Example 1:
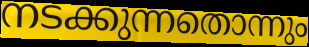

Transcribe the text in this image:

നടക്കുന്നതൊന്നും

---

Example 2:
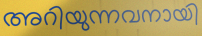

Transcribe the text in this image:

അറിയുന്നവനായി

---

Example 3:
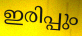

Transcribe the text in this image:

ഇരിപ്പും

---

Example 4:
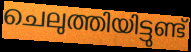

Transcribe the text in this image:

ചെലുത്തിയിട്ടുണ്ട്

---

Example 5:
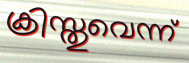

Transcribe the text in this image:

ക്രിസ്തുവെന്ന്